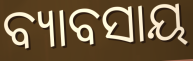
ବ୍ୟାବସାୟ